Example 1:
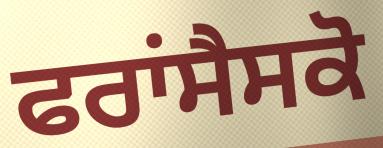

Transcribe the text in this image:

ਫਰਾਂਸੈਸਕੋ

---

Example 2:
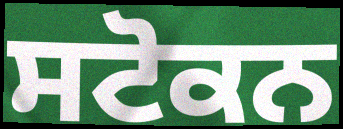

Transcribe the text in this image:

ਸਟੋਕਨ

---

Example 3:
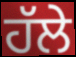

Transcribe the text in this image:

ਹੱਲੇ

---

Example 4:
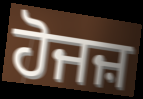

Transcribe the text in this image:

ਹੋਜਜ਼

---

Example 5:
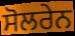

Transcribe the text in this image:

ਸੋਲਰੇਨ